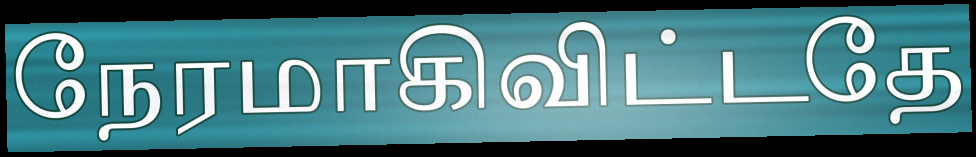
நேரமாகிவிட்டதே